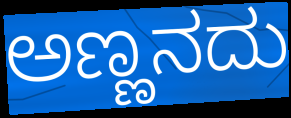
ಅಣ್ಣನದು